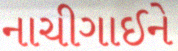
નાચીગાઈને